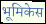
भूमिकेस